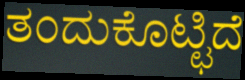
ತಂದುಕೊಟ್ಟಿದೆ